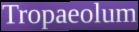
Tropaeolum